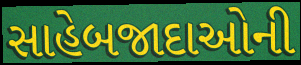
સાહેબજાદાઓની